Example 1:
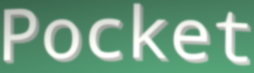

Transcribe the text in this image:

Pocket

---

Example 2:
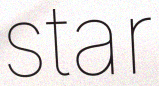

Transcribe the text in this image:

star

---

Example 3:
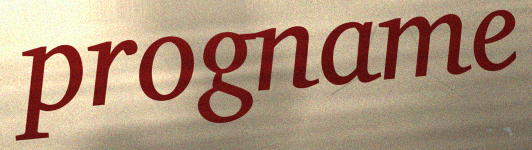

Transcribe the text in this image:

progname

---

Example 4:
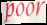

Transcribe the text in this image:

poor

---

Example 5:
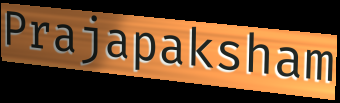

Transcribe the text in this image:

Prajapaksham